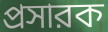
প্রসারক